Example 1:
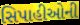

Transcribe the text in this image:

સિપાહીઓની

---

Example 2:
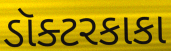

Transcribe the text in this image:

ડૉક્ટરકાકા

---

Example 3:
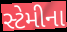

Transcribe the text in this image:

સ્ટેમીના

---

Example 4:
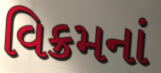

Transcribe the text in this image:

વિક્રમનાં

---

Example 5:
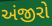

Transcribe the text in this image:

અંજીરો